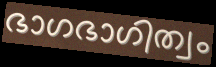
ഭാഗഭാഗിത്വം